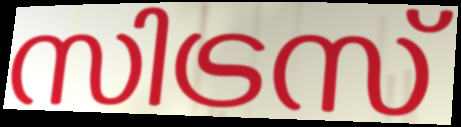
സിട്രസ്